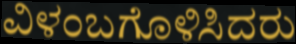
ವಿಳಂಬಗೊಳಿಸಿದರು